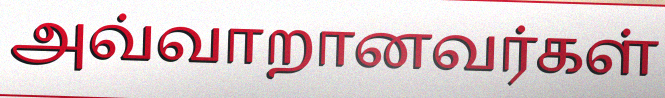
அவ்வாறானவர்கள்